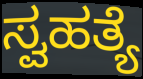
ಸ್ವಹತ್ಯೆ